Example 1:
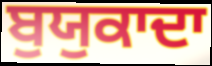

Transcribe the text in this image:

ਬੁਯੁਕਾਦਾ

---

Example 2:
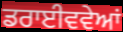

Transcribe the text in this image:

ਡਰਾਈਵਵੇਆਂ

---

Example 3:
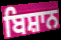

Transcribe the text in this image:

ਬਿਸ਼ਾਨ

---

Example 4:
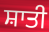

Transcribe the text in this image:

ਸ਼ਾਤੀ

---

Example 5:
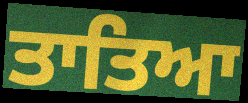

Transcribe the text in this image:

ਤਾਤਿਆ